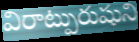
విరాట్పురుషుని